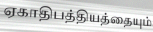
ஏகாதிபத்தியத்தையும்